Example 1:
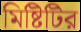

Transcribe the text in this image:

মিষ্টিটির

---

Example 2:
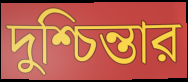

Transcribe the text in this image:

দুশ্চিন্তার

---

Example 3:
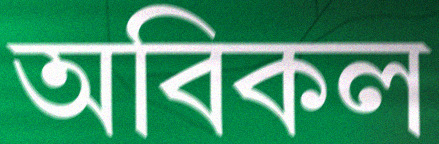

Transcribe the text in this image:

অবিকল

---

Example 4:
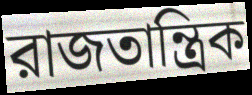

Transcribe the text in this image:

রাজতান্ত্রিক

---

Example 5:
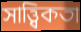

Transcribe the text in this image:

সাত্ত্বিকতা